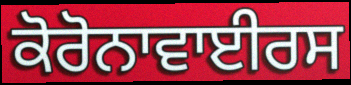
ਕੋਰੋਨਾਵਾਈਰਸ